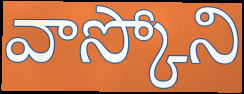
వాస్కోని